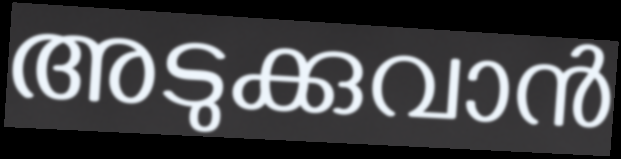
അടുക്കുവാൻ